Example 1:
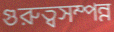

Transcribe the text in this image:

গুরুত্বসম্পন্ন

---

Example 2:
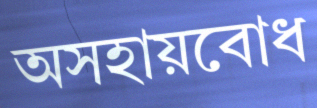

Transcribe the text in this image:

অসহায়বোধ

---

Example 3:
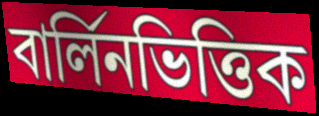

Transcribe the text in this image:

বার্লিনভিত্তিক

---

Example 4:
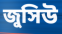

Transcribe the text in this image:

জুসিউ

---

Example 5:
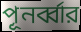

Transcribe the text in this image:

পূনর্ব্বার